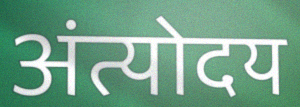
अंत्योदय